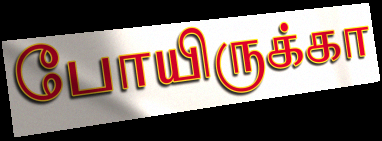
போயிருக்கா